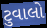
ટુવાલો